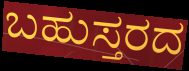
ಬಹುಸ್ತರದ